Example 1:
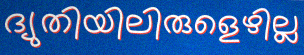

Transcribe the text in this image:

ദ്യുതിയിലിരുളെഴില്ല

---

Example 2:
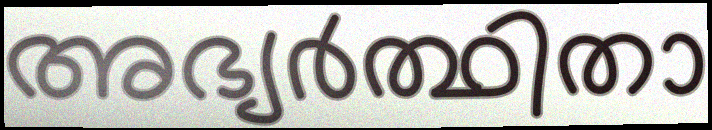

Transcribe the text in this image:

അഭ്യർത്ഥിതാ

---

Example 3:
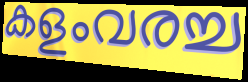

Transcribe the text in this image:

കളംവരച്ച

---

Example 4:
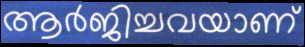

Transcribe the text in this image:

ആർജിച്ചവയാണ്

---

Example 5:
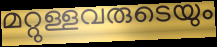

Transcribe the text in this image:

മറ്റുള്ളവരുടെയും